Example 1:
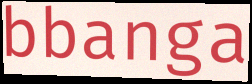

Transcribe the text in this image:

bbanga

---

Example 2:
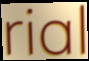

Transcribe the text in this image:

rial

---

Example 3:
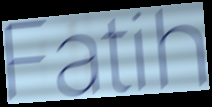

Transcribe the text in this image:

Fatih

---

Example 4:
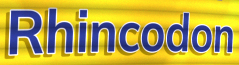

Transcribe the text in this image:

Rhincodon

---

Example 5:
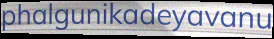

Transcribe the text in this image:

phalgunikadeyavanu